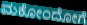
ಮಕೋಂದೋಗೆ